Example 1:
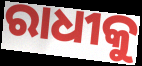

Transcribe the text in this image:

ରାଧୀକୁ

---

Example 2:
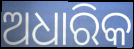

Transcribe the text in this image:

ଅଧାରିକ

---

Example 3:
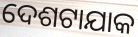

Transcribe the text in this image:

ଦେଶଟାଯାକ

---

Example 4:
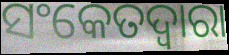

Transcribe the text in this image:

ସଂକେତଦ୍ଵାରା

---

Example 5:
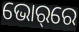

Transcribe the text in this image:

ଭୋର୍‌ରେ